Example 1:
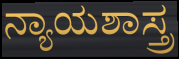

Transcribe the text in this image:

ನ್ಯಾಯಶಾಸ್ತ್ರ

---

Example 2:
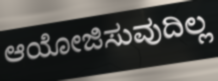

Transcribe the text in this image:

ಆಯೋಜಿಸುವುದಿಲ್ಲ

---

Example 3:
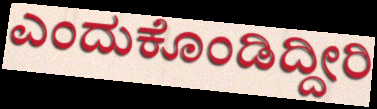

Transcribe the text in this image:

ಎಂದುಕೊಂಡಿದ್ದೀರಿ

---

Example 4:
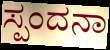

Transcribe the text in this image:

ಸ್ಪಂದನಾ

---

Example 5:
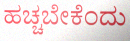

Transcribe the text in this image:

ಹಚ್ಚಬೇಕೆಂದು